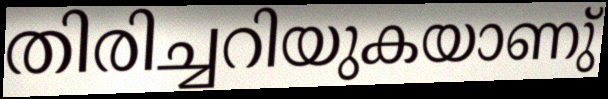
തിരിച്ചറിയുകയാണു്